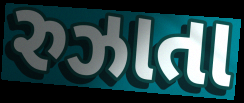
રુઝાતા